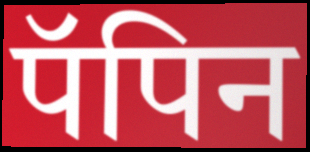
पॅपिन